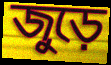
জুড়ে